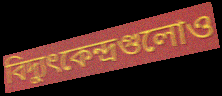
বিদ্যুৎকেন্দ্রগুলোও